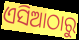
ଏସିଆଠାରୁ